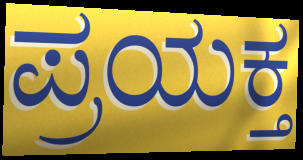
ಪ್ರಯಕ್ತ